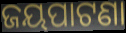
ଜୟପାଟଣା